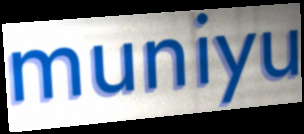
muniyu